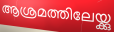
ആശ്രമത്തിലേയ്ക്കു